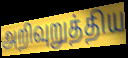
அறிவுறுத்திய